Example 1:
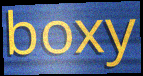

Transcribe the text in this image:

boxy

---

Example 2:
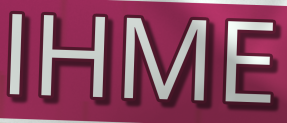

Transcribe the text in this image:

IHME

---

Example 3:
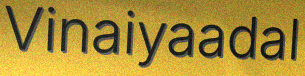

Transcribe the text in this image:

Vinaiyaadal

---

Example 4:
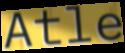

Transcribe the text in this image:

Atle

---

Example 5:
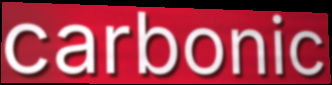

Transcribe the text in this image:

carbonic